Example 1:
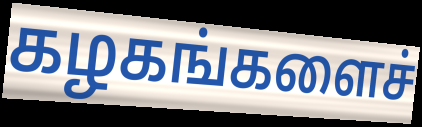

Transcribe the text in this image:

கழகங்களைச்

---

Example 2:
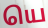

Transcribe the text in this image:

யெ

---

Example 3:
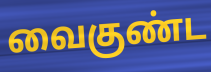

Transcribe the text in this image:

வைகுண்ட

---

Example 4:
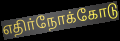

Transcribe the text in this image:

எதிர்நோக்கோடு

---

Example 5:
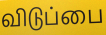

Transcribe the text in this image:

விடுப்பை